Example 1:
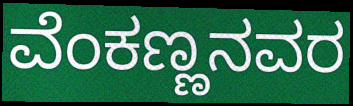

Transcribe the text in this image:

ವೆಂಕಣ್ಣನವರ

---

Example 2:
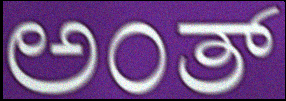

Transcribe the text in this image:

ಅಂತ್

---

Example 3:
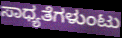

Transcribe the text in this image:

ಸಾಧ್ಯತೆಗಳುಂಟು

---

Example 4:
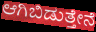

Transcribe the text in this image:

ಆಗಿಬಿಡುತ್ತೇನೆ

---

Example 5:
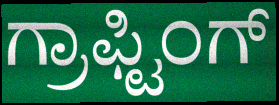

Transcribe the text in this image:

ಗ್ರಾಫ್ಟಿಂಗ್